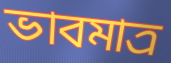
ভাবমাত্র